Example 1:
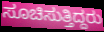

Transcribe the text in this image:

ಸೂಚಿಸುತ್ತಿದ್ದರು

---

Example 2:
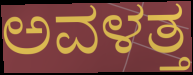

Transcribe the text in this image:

ಅವಳತ್ತ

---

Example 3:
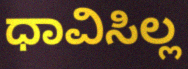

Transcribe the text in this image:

ಧಾವಿಸಿಲ್ಲ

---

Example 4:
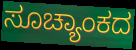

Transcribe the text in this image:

ಸೂಚ್ಯಾಂಕದ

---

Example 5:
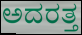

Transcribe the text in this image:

ಅದರತ್ತ